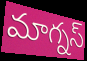
మాగ్నస్